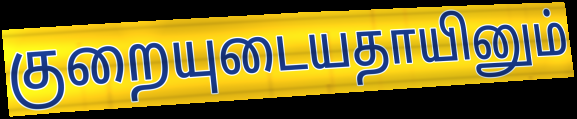
குறையுடையதாயினும்